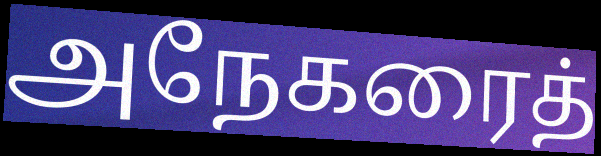
அநேகரைத்